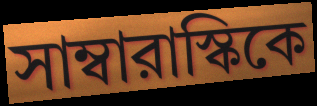
সাম্বারাস্কিকে